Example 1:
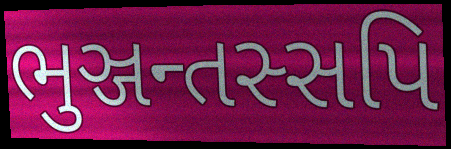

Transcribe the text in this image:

ભુઞ્જન્તસ્સપિ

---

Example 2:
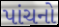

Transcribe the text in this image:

પાંચનો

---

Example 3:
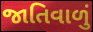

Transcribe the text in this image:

જાતિવાળું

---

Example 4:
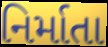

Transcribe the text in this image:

નિર્માતા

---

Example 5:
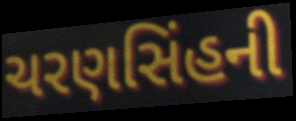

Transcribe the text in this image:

ચરણસિંહની